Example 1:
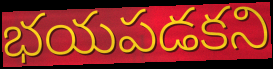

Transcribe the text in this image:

భయపడకని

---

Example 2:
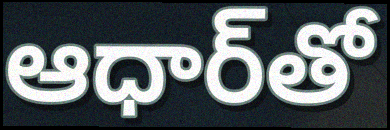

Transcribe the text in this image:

ఆధార్‌తో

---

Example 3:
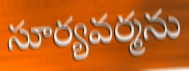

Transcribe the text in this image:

సూర్యవర్మను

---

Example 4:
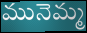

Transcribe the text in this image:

మునెమ్మ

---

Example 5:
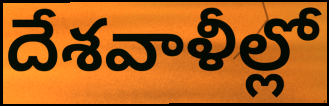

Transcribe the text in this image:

దేశవాళీల్లో